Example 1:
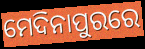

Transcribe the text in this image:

ମେଦିନାପୁରରେ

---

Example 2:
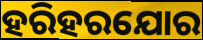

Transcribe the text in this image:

ହରିହରଯୋର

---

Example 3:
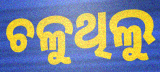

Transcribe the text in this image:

ଚଳୁଥିଲୁ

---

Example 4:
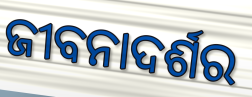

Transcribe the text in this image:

ଜୀବନାଦର୍ଶର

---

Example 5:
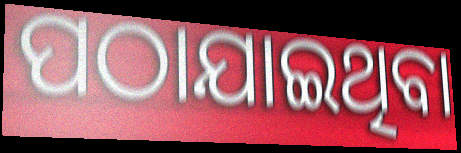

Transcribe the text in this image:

ପଠାଯାଇଥିବା